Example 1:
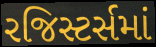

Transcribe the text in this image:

રજિસ્ટર્સમાં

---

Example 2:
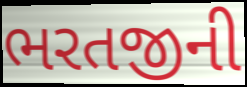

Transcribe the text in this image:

ભરતજીની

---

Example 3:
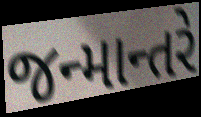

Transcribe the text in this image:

જન્માન્તરે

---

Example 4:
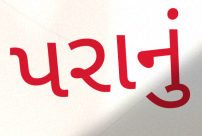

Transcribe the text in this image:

પરાનું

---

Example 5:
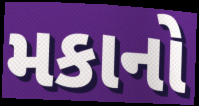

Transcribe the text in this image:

મકાનો